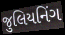
જુલિયનિંગ